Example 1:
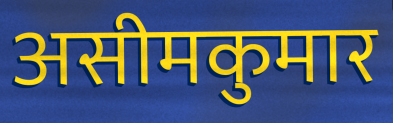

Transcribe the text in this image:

असीमकुमार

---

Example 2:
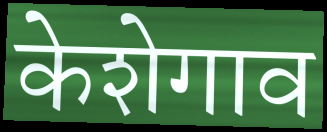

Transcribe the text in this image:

केशेगाव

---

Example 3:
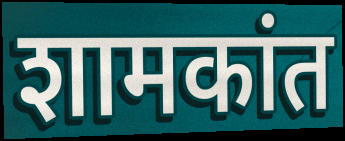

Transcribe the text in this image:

शामकांत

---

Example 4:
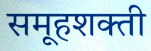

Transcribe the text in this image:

समूहशक्ती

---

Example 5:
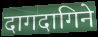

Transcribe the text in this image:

दागदागिने